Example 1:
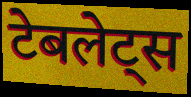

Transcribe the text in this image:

टेबलेट्स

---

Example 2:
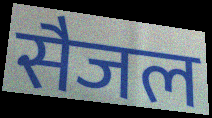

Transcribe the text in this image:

सैजल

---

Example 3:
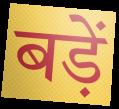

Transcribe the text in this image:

बड़ें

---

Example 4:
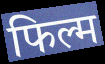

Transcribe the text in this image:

फिल्म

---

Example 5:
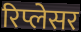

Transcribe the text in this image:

रिप्लेसर